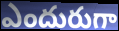
ఎందురుగా